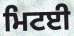
ਮਿਟਈ